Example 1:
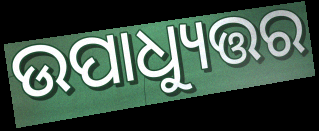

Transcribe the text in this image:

ଉପାଧ୍ୟୁତ୍ତର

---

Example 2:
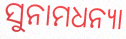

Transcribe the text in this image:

ସୁନାମଧନ୍ୟା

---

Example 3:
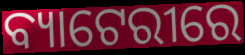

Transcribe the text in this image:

ବ୍ୟାଟେରୀରେ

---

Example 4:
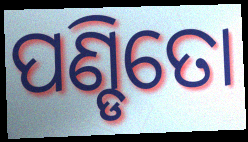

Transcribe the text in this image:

ପଣ୍ଡିତୋ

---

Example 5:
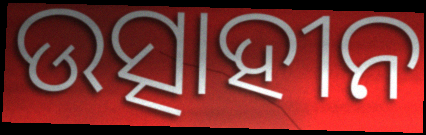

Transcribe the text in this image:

ଉତ୍ସାହୀନ